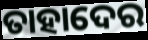
ତାହାଦେର